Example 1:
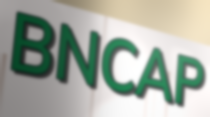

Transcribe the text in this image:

BNCAP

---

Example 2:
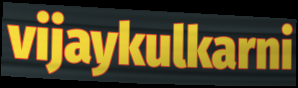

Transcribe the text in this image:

vijaykulkarni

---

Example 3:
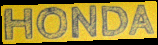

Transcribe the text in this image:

HONDA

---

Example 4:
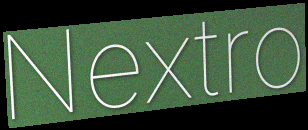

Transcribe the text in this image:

Nextro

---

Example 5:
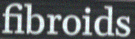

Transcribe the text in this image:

fibroids